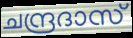
ചന്ദ്രദാസ്